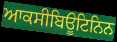
ਆਕਸੀਬਿਊਟਿਨਿਨ